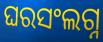
ଘରସଂଲଗ୍ନ